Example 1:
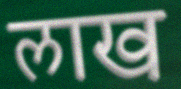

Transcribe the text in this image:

लाख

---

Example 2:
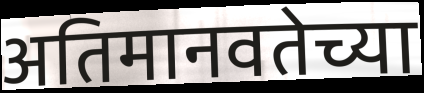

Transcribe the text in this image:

अतिमानवतेच्या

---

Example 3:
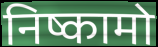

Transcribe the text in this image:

निष्कामो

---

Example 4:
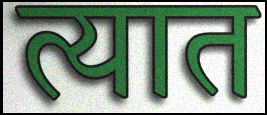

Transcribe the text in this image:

त्यात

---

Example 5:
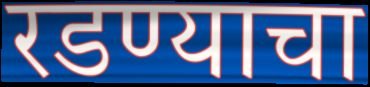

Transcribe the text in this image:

रडण्याचा